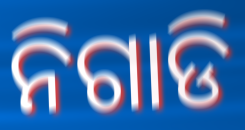
ନିଗାଡି